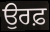
ਉਰਫ਼